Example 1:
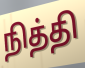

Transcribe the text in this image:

நித்தி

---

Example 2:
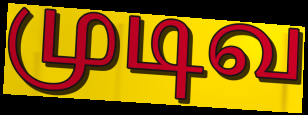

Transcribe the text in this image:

முடிவ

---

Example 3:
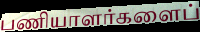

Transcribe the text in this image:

பணியாளர்களைப்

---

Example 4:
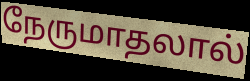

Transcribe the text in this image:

நேருமாதலால்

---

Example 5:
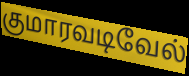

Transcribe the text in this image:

குமாரவடிவேல்